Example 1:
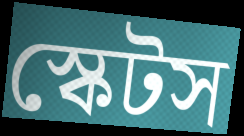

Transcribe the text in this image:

স্কেটস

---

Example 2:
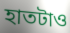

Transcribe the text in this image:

হাতটাও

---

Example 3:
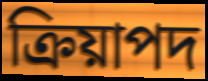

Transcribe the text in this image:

ক্রিয়াপদ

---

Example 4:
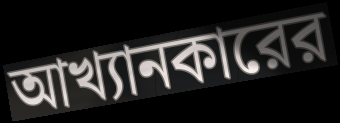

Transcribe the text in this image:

আখ্যানকারের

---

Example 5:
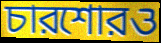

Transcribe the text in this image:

চারশোরও